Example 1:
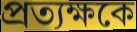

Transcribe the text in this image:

প্রত্যক্ষকে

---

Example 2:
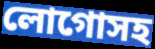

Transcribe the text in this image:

লোগোসহ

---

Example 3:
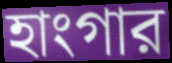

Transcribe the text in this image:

হাংগার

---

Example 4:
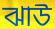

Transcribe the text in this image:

ঝাউ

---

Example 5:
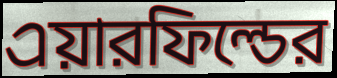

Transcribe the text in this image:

এয়ারফিল্ডের